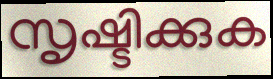
സൃഷ്ടിക്കുക